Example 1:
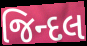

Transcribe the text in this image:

જિન્દલ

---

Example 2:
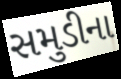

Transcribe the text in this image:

સમુડીના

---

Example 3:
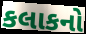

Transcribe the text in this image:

કલાકનો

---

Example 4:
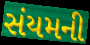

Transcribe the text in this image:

સંયમની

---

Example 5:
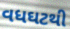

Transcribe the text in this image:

વધઘટથી